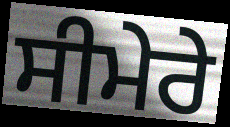
ਸੀਮੇਰੇ